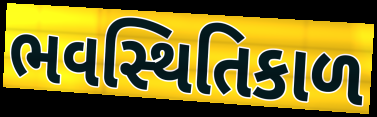
ભવસ્થિતિકાળ